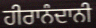
ਹੀਰਾਨੰਦਾਨੀ